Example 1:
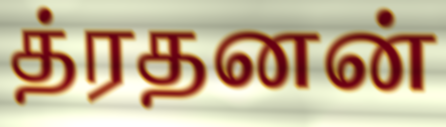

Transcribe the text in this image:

த்ரதனன்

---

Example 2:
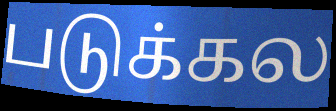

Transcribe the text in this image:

படுக்கல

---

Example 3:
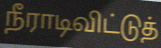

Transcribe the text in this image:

நீராடிவிட்டுத்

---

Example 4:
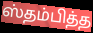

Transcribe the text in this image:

ஸ்தம்பித்த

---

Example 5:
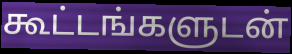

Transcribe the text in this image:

கூட்டங்களுடன்